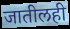
जातीलही